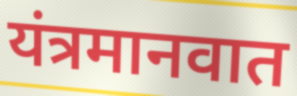
यंत्रमानवात